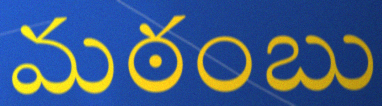
మఠంబు